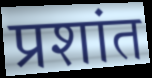
प्रशांत